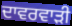
ਦਾਵਰਵਾੜੀ